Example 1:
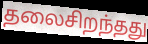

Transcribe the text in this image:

தலைசிறந்தது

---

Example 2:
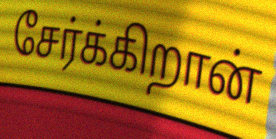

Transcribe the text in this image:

சேர்க்கிறான்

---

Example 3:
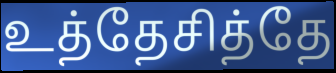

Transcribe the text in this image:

உத்தேசித்தே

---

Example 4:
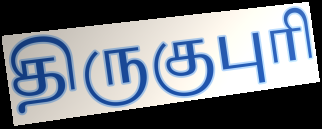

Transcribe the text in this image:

திருகுபுரி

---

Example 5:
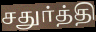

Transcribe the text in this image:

சதுர்த்தி